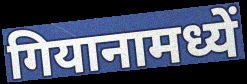
गियानामध्यें